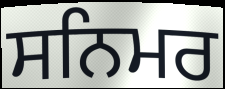
ਸਨਿਮਰ